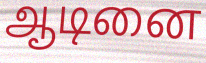
ஆடினை